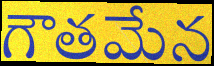
గౌతమేన